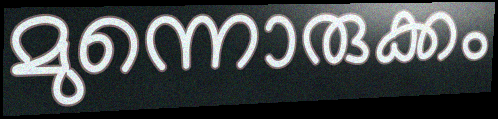
മുന്നൊരുക്കം